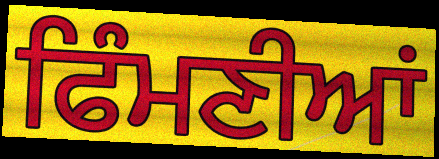
ਫਿੰਮਣੀਆਂ